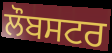
ਲੌਬਸਟਰ